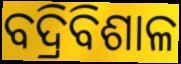
ବଦ୍ରିବିଶାଳ